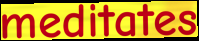
meditates